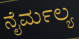
ನೈರ್ಮಲ್ಯ